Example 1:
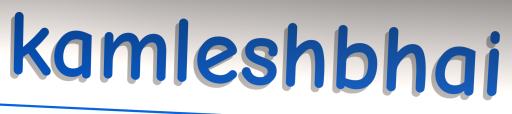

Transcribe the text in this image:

kamleshbhai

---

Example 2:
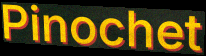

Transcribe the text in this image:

Pinochet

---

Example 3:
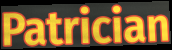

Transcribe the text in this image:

Patrician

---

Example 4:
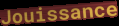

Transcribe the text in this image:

Jouissance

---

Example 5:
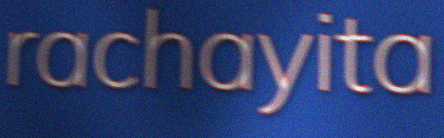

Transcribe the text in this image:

rachayita